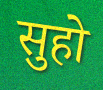
सुहो